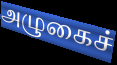
அழுகைச்